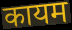
कायम